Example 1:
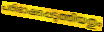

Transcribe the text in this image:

പരിഭാഷപ്പെടുത്തിയതും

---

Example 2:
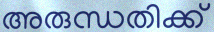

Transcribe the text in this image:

അരുന്ധതിക്ക്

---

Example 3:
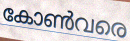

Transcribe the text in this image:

കോൺവരെ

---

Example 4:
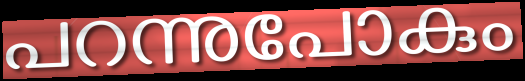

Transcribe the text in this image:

പറന്നുപോകും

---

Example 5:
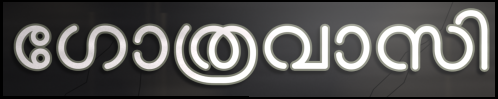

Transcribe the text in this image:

ഗോത്രവാസി